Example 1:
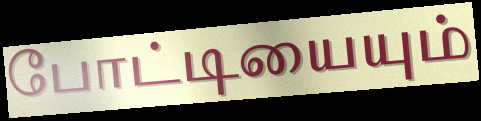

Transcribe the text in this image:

போட்டியையும்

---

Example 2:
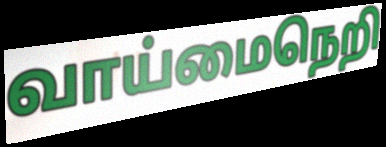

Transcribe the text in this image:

வாய்மைநெறி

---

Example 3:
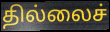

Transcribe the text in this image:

தில்லைச்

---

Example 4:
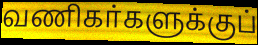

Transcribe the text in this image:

வணிகர்களுக்குப்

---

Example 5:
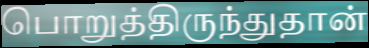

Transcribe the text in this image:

பொறுத்திருந்துதான்